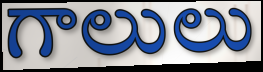
గాలులు